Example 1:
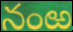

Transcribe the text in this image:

నంఱ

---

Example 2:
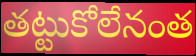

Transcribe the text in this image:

తట్టుకోలేనంత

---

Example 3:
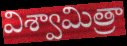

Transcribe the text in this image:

విశ్వామిత్రా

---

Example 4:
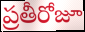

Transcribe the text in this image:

ప్రతీరోజూ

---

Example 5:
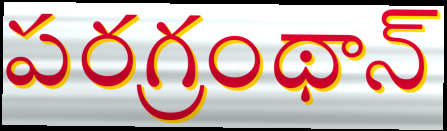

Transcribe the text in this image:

పరగ్రంథాన్